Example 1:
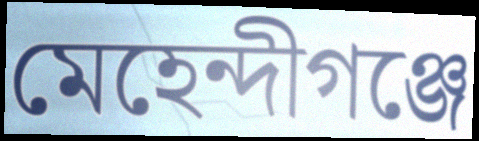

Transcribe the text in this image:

মেহেন্দীগঞ্জে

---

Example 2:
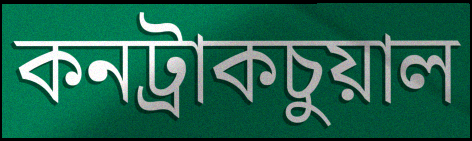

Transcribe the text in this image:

কনট্রাকচুয়াল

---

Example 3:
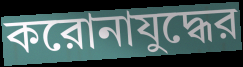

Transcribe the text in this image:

করোনাযুদ্ধের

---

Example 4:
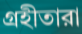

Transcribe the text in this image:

গ্রহীতারা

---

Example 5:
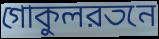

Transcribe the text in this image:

গোকুলরতনে